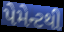
પેમેન્ટથી